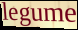
legume